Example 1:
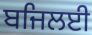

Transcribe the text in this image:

ਬਜਿਲਈ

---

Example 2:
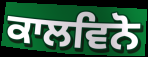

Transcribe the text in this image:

ਕਾਲਵਿਨੋ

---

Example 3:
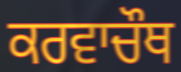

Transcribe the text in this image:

ਕਰਵਾਚੌਥ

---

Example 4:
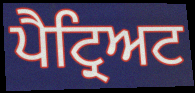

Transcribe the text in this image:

ਪੈਟ੍ਰਿਅਟ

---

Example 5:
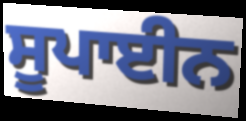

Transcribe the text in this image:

ਸੂਪਾਈਨ